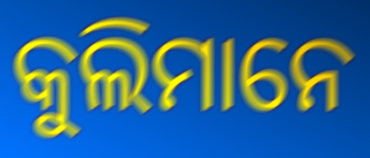
କୁଲିମାନେ